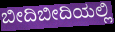
ಬೀದಿಬೀದಿಯಲ್ಲಿ